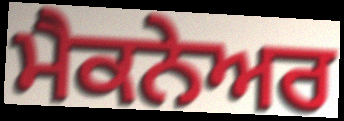
ਮੈਕਨੇਅਰ